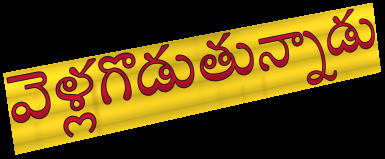
వెళ్లగొడుతున్నాడు